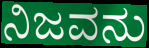
ನಿಜವನು